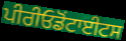
ਪੀਰੀਓਡੋਂਟਾਈਟਸ